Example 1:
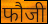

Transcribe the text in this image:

फौजी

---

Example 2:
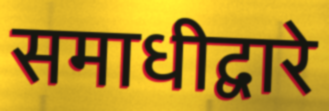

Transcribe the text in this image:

समाधीद्वारे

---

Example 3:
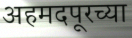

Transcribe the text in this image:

अहमदपूरच्या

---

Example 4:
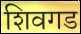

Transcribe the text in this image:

शिवगड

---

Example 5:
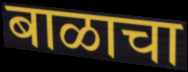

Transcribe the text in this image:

बाळाचा